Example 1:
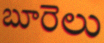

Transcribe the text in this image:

బూరెలు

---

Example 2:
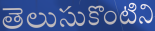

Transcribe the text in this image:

తెలుసుకొంటిని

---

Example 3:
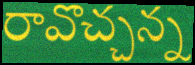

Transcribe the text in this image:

రావొచ్చన్న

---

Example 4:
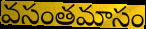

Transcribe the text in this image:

వసంతమాసం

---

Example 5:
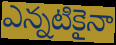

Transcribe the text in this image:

ఎన్నటికైనా